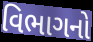
વિભાગનો